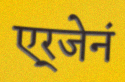
एर्जेनं